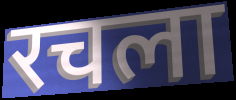
रचला